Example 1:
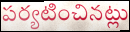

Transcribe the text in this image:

పర్యటించినట్లు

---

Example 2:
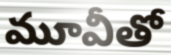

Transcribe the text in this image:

మూవీతో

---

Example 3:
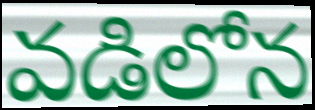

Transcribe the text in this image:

వడిలోన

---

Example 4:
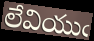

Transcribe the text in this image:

లేవియుఁ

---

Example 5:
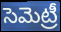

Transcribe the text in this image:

సెమెట్రీ